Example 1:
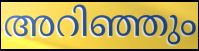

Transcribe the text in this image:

അറിഞ്ഞും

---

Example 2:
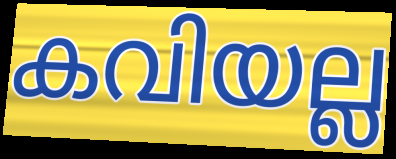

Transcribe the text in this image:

കവിയല്ല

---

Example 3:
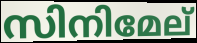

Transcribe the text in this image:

സിനിമേല്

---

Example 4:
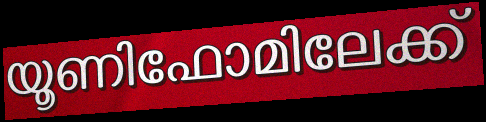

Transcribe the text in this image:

യൂണിഫോമിലേക്ക്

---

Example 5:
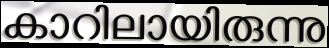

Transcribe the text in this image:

കാറിലായിരുന്നു